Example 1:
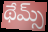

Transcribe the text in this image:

థేమ్స్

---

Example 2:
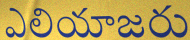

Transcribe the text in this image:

ఎలియాజరు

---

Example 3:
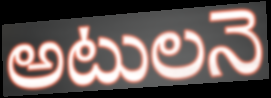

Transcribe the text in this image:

అటులనె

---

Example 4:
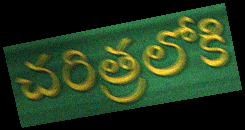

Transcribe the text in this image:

చరిత్రలోకి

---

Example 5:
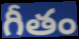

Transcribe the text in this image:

గీతం